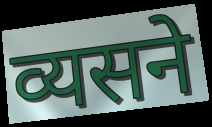
व्यसने